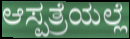
ಆಸ್ಪತ್ರೆಯಲ್ಲೆ